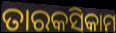
ତାରକସିକାମ